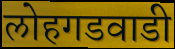
लोहगडवाडी